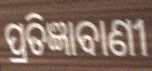
ପ୍ରତିଜ୍ଞାବାଣୀ